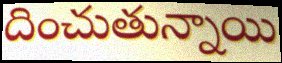
దించుతున్నాయి